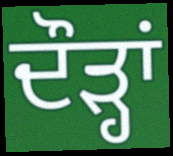
ਦੌੜ੍ਹਾਂ